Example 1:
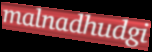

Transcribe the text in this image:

malnadhudgi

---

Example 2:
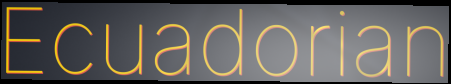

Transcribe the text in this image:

Ecuadorian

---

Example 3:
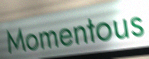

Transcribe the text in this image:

Momentous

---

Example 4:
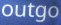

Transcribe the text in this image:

outgo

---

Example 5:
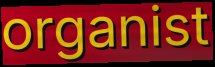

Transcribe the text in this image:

organist